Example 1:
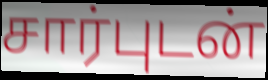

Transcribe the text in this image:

சார்புடன்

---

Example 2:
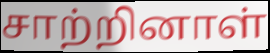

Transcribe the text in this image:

சாற்றினாள்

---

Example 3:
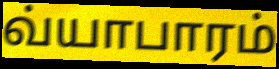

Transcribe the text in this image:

வ்யாபாரம்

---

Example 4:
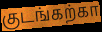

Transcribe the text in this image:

குடங்கற்கா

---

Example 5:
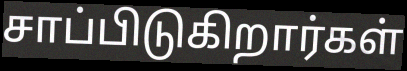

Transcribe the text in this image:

சாப்பிடுகிறார்கள்